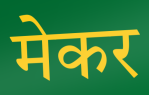
मेकर